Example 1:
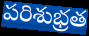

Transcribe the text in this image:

పరిశుభ్రత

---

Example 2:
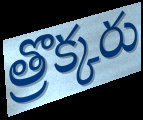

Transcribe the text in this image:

త్రొక్కరు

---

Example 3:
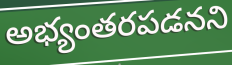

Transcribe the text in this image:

అభ్యంతరపడనని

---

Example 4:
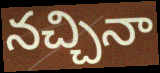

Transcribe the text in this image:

నచ్చినా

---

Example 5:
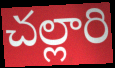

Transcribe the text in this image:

చల్లారి